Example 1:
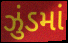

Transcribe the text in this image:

ઝુંડમાં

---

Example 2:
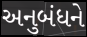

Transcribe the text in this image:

અનુબંધને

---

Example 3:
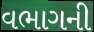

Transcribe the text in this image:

વભાગની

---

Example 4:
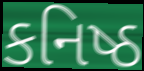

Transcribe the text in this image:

કનિષ્ઠ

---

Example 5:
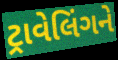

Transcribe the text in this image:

ટ્રાવેલિંગને